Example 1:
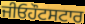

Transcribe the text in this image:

ਜੀਓਹੌਟਸਟਾਰ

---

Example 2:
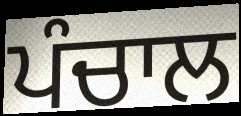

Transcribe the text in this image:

ਪੰਚਾਲ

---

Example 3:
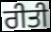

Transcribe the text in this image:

ਰੀਤੀ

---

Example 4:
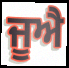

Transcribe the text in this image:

ਜੂਐ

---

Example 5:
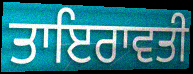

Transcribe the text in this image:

ਤਾਇਰਾਵਤੀ